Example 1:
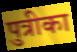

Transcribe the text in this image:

पुत्रीका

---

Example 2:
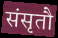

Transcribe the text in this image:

संसृतौ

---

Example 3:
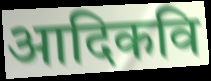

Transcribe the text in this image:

आदिकवि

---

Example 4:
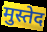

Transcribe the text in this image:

मुस्तेद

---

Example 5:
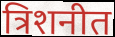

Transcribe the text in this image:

त्रिशनीत